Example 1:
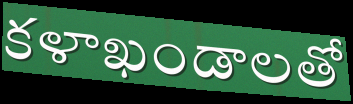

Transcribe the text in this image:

కళాఖండాలతో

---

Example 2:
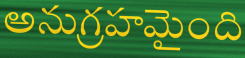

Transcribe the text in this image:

అనుగ్రహమైంది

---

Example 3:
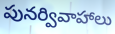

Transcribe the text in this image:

పునర్వివాహాలు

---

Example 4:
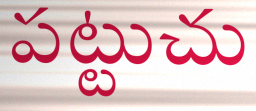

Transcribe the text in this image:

పట్టుచు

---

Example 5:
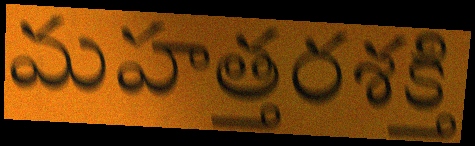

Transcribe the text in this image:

మహత్తరశక్తి